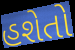
હશેતો